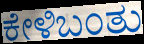
ಕೇಳಿಬಂತು